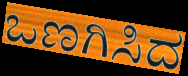
ಒಣಗಿಸಿದ